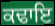
ਕਢਾਇ